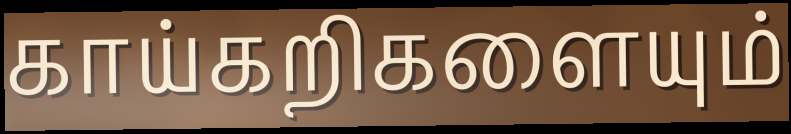
காய்கறிகளையும்